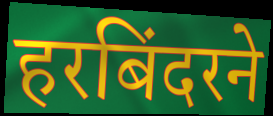
हरबिंदरने